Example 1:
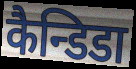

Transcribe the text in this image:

कैन्डिडा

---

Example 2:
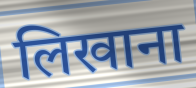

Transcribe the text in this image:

लिखाना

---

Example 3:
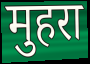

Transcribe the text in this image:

मुहरा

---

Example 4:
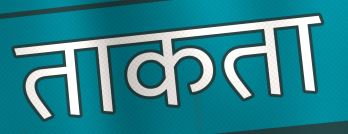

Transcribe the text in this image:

ताकता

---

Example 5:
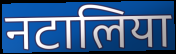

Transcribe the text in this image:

नटालिया